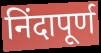
निंदापूर्ण